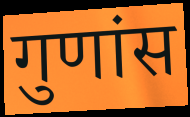
गुणांस